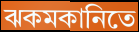
ঝকমকানিতে